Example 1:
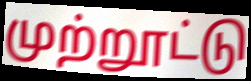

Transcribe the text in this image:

முற்றூட்டு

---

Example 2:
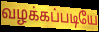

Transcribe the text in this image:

வழக்கப்படியே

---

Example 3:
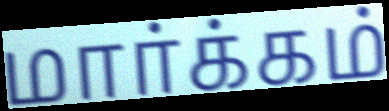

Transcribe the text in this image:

மார்க்கம்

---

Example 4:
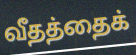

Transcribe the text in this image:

வீதத்தைக்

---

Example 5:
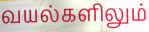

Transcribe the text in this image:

வயல்களிலும்